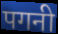
पगनी